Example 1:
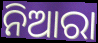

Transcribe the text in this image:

ନିଆରା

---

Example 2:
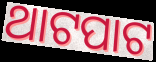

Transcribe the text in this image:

ଥାଟପାଟ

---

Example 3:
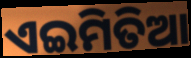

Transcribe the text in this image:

ଏଇମିତିଆ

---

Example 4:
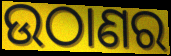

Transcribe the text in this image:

ଉଠାଣର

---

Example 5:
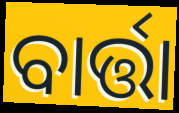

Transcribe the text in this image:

ବାର୍ତ୍ତା